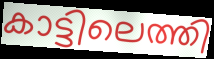
കാട്ടിലെത്തി